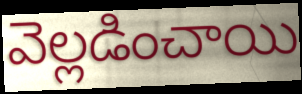
వెల్లడించాయి